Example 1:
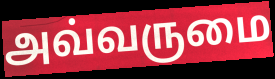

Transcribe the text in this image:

அவ்வருமை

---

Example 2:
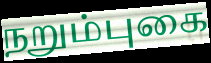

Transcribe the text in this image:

நறும்புகை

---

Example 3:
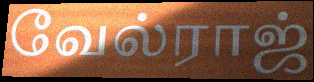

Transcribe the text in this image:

வேல்ராஜ்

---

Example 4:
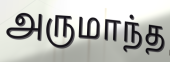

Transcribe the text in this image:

அருமாந்த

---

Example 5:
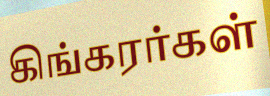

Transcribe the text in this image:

கிங்கரர்கள்